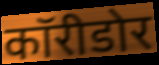
कॉरीडोर